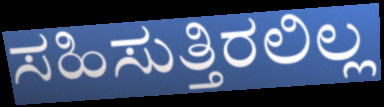
ಸಹಿಸುತ್ತಿರಲಿಲ್ಲ